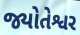
જ્યોતેશ્વર